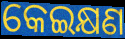
କେଇକ୍ଷଣ